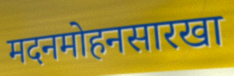
मदनमोहनसारखा